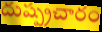
దుష్ప్రచారం